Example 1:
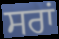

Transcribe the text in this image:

ਸਰਾਂ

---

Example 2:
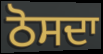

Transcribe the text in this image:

ਠੋਸਦਾ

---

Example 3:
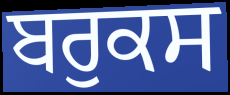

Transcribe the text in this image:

ਬਰੁਕਸ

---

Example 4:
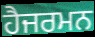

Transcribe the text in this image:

ਹੈਜਰਮਨ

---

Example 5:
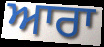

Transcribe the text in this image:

ਆਰਾ